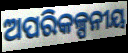
ଅପରିକଳ୍ପନୀୟ